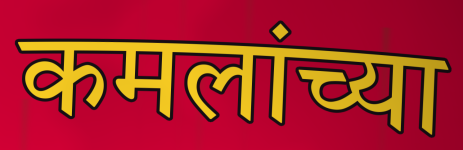
कमलांच्या